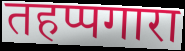
तहप्पगारा